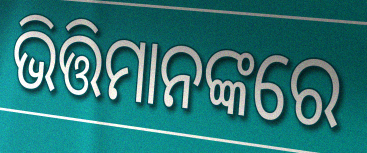
ଭିତ୍ତିମାନଙ୍କରେ